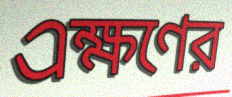
এক্ষণের